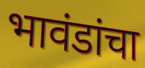
भावंडांचा